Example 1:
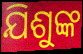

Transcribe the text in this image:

ଯିଶୁଙ୍କ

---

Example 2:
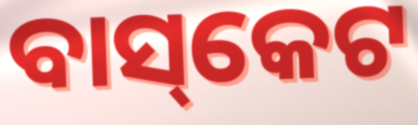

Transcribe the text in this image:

ବାସ୍‌କେଟ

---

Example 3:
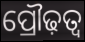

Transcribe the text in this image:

ପ୍ରୌଢ଼ତ୍ୱ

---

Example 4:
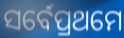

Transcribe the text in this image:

ସର୍ବେପ୍ରଥମେ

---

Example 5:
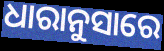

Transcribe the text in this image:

ଧାରାନୁସାରେ